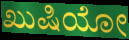
ಖುಷಿಯೋ